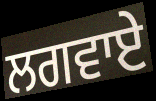
ਲਗਵਾਏ